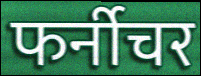
फर्नीचर